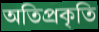
অতিপ্রকৃতি